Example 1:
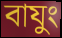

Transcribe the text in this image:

বাযুং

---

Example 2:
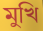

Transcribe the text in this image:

মুখি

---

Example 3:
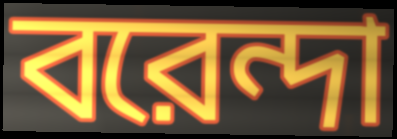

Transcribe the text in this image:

বরেন্দা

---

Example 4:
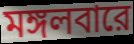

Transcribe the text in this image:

মঙ্গলবারে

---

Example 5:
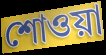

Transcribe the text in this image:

শোওয়া